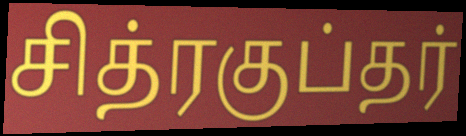
சித்ரகுப்தர்